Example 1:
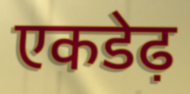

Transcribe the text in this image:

एकडेढ़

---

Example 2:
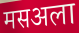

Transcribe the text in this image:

मसअला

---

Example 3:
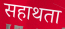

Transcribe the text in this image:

सहाथता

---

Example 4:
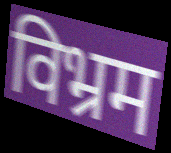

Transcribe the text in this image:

विभ्रम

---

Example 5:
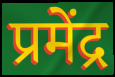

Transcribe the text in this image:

प्रमेंद्र